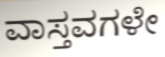
ವಾಸ್ತವಗಳೇ